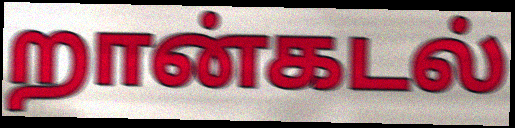
றான்கடல்